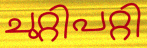
ചുറ്റിപറ്റി